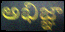
అభిజ్ఞా